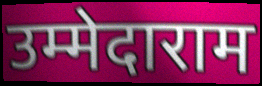
उम्मेदाराम